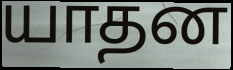
யாதன